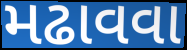
મઢાવવા